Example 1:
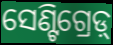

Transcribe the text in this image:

ସେଣ୍ଟିଗ୍ରେଡ଼୍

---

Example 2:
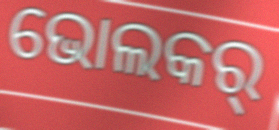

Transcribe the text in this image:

ଭୋଲକର୍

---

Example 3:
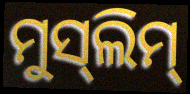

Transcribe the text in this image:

ମୁସ୍‌ଲିମ୍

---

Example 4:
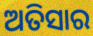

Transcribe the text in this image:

ଅତିସାର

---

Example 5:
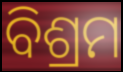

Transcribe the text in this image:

ବିଶ୍ରମ